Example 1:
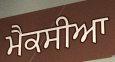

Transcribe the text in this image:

ਮੈਕਸੀਆ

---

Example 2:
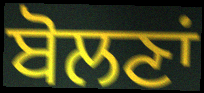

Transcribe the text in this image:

ਬੋਲਣਾਂ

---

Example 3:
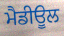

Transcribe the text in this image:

ਮੈਡੀਊਲ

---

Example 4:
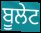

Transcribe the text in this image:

ਬੂਲੇਟ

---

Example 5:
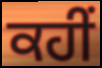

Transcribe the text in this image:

ਕਹੀਂ